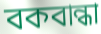
বকবান্ধা